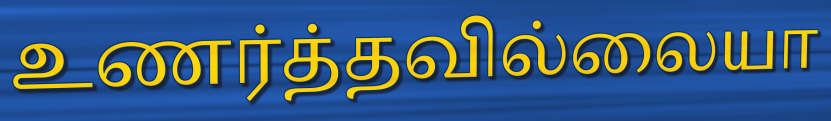
உணர்த்தவில்லையா